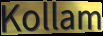
Kollam